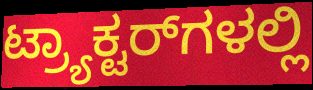
ಟ್ರ್ಯಾಕ್ಟರ್‌ಗಳಲ್ಲಿ